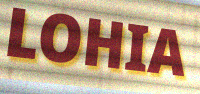
LOHIA